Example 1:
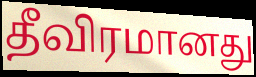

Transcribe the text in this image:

தீவிரமானது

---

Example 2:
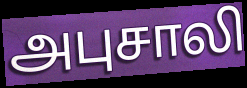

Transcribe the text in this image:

அபுசாலி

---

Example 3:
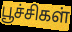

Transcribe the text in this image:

பூச்சிகள்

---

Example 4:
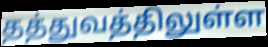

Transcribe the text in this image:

தத்துவத்திலுள்ள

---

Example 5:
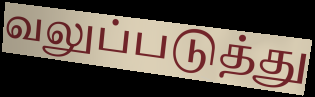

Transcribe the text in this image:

வலுப்படுத்து